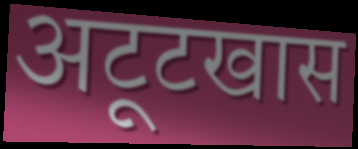
अटूटखास